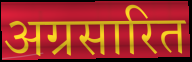
अग्रसारित